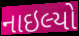
નાઇલ્યો